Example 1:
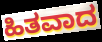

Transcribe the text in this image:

ಹಿತವಾದ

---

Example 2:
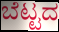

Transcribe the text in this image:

ಬೆಟ್ಟದ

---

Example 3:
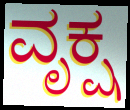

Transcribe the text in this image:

ವೃಕ್ಷ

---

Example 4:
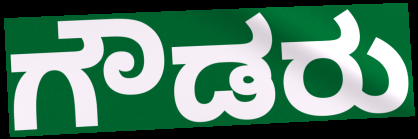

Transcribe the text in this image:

ಗೌಡರು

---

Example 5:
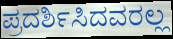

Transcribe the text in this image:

ಪ್ರದರ್ಶಿಸಿದವರಲ್ಲ